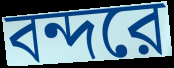
বন্দরে